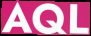
AQL